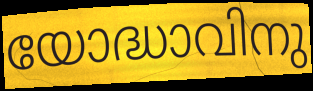
യോദ്ധാവിനു